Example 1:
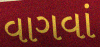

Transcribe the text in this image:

વાગવાં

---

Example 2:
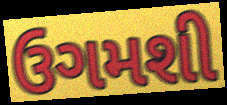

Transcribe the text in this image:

ઉગમશી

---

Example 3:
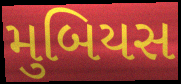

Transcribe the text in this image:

મુબિયસ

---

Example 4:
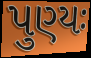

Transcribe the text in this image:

પુણ્યઃ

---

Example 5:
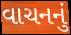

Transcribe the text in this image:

વાચનનું